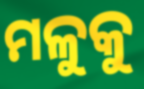
ମଳୁକୁ